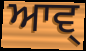
ਆਵ੍